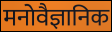
मनोवैज्ञानिक